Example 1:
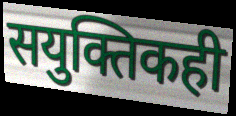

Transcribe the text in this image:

सयुक्तिकही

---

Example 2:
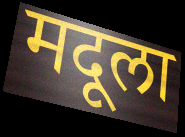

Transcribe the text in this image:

मदूला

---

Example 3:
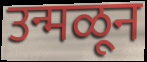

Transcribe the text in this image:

उन्मळून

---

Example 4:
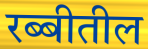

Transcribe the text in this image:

रब्बीतील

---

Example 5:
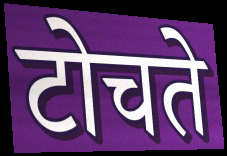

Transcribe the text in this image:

टोचते